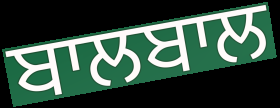
ਬਾਲਬਾਲ